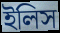
ইলিস